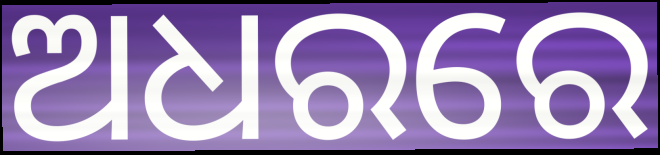
ଅଧରରେ